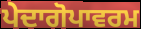
ਪੇਦਾਗੋਪਾਵਰਮ